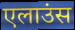
एलाउंस